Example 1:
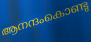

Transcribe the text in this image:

ആനന്ദംകൊണ്ടു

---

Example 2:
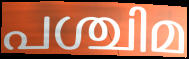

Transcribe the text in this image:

പശ്ചിമ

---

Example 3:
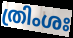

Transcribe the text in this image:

ത്രിംശഃ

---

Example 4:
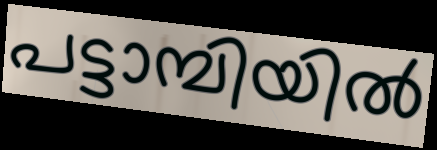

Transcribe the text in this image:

പട്ടാമ്പിയിൽ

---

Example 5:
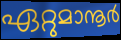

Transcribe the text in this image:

ഏറ്റുമാനൂർ